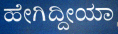
ಹೇಗಿದ್ದೀಯಾ